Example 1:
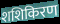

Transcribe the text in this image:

शशिकिरण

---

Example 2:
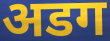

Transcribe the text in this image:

अडग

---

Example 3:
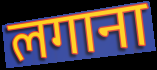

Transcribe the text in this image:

लगाना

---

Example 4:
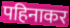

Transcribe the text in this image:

पहिनाकर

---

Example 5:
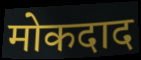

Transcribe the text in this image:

मोकदाद